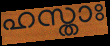
ഹസ്താഃ